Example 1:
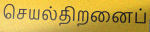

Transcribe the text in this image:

செயல்திறனைப்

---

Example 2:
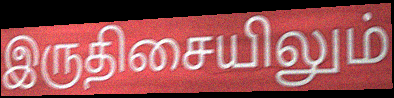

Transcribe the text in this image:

இருதிசையிலும்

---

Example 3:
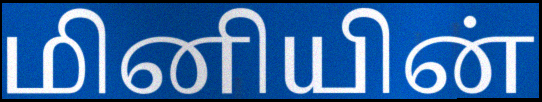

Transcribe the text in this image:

மினியின்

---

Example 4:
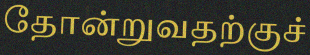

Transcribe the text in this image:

தோன்றுவதற்குச்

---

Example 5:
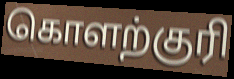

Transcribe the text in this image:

கொளற்குரி